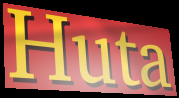
Huta